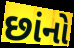
છાંનો